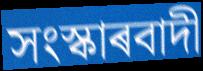
সংস্কাৰবাদী